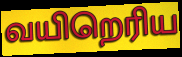
வயிறெரிய